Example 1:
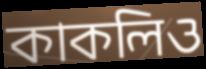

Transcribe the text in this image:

কাকলিও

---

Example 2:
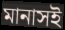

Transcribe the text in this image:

মানাসই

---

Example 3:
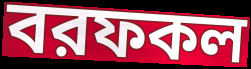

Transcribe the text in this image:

বরফকল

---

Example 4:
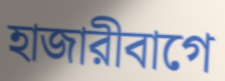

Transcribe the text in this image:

হাজারীবাগে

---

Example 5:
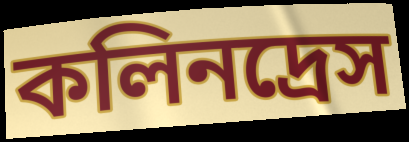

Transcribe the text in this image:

কলিনদ্রেস